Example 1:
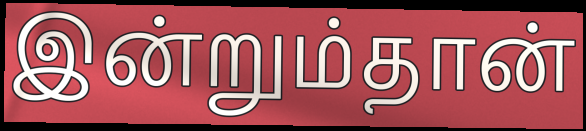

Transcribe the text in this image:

இன்றும்தான்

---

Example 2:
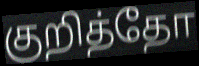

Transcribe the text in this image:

குறித்தோ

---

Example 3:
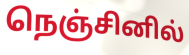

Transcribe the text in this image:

நெஞ்சினில்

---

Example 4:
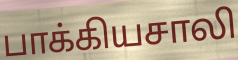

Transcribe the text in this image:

பாக்கியசாலி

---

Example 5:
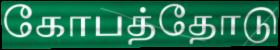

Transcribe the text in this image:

கோபத்தோடு